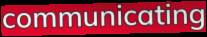
communicating